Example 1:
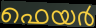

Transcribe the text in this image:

ഫെയർ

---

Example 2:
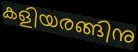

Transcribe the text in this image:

കളിയരങ്ങിനു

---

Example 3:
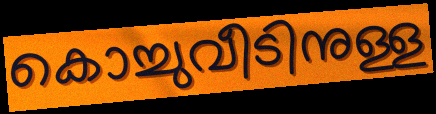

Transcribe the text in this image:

കൊച്ചുവീടിനുള്ള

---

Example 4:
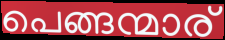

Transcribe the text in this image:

പെങ്ങന്മാര്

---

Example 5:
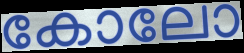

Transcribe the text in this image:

കോലോ